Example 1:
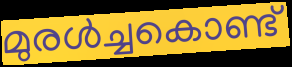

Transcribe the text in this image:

മുരൾച്ചകൊണ്ട്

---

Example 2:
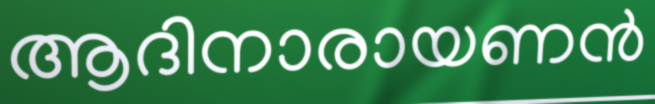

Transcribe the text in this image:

ആദിനാരായണൻ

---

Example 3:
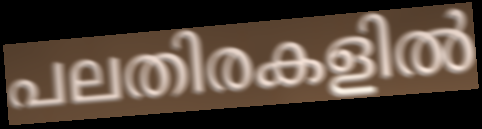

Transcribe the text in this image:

പലതിരകളിൽ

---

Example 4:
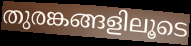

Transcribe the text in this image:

തുരങ്കങ്ങളിലൂടെ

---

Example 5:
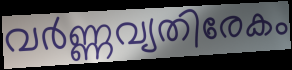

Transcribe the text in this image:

വർണ്ണവ്യതിരേകം